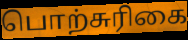
பொற்சுரிகை